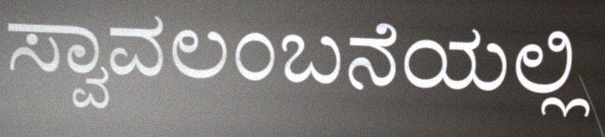
ಸ್ವಾವಲಂಬನೆಯಲ್ಲಿ